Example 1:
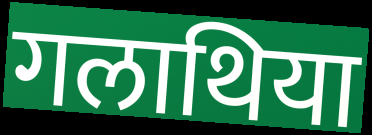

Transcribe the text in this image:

गलाथिया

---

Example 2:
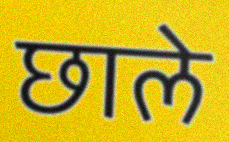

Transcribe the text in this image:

छाले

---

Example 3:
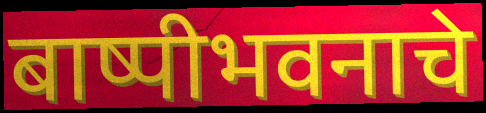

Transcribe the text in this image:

बाष्पीभवनाचे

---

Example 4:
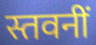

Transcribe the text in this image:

स्तवनीं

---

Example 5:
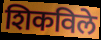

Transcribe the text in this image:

शिकविले